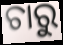
ଚାରୁ